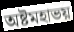
অষ্টমহাভয়